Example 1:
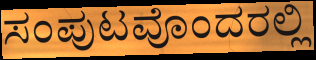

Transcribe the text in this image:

ಸಂಪುಟವೊಂದರಲ್ಲಿ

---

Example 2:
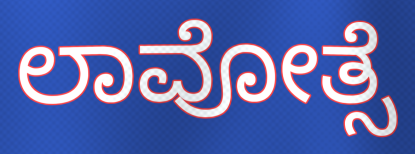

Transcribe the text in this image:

ಲಾವೋತ್ಸೆ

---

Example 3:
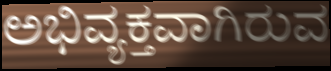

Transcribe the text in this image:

ಅಭಿವ್ಯಕ್ತವಾಗಿರುವ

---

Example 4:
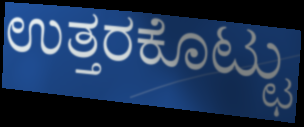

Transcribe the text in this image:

ಉತ್ತರಕೊಟ್ಟು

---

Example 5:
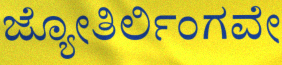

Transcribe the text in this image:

ಜ್ಯೋತಿರ್ಲಿಂಗವೇ